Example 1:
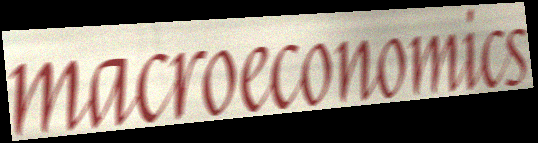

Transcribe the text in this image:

macroeconomics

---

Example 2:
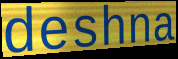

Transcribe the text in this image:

deshna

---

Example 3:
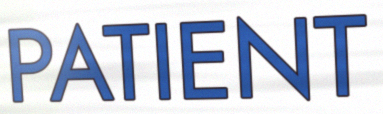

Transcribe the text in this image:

PATIENT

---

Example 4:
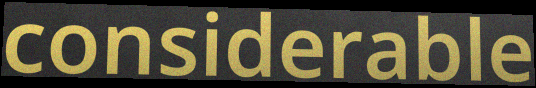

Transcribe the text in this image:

considerable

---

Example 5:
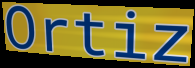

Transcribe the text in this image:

Ortiz